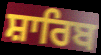
ਸ਼ਾਰਿਬ